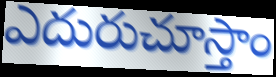
ఎదురుచూస్తాం